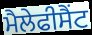
ਮੈਲੇਫੀਸੈਂਟ